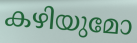
കഴിയുമോ